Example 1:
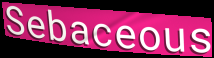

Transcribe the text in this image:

Sebaceous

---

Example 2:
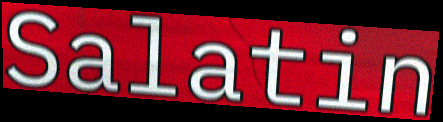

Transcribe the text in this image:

Salatin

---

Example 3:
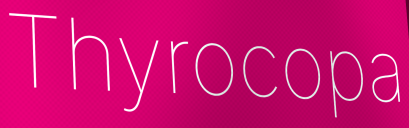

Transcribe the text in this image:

Thyrocopa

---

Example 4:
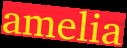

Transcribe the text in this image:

amelia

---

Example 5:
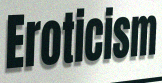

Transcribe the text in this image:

Eroticism